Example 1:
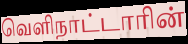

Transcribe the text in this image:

வெளிநாட்டாரின்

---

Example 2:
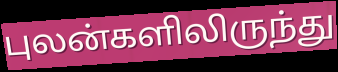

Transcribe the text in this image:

புலன்களிலிருந்து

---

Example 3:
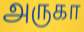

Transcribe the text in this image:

அருகா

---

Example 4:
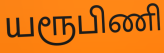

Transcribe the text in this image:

யரூபிணி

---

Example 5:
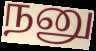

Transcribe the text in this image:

நனு